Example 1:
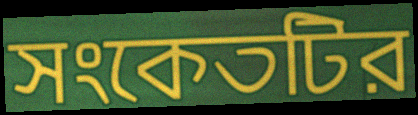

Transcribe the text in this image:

সংকেতটির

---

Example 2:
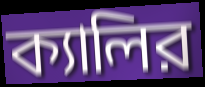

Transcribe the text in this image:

ক্যালির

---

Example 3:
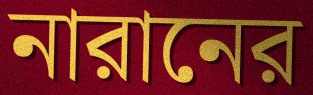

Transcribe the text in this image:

নারানের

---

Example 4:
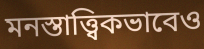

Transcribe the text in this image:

মনস্তাত্ত্বিকভাবেও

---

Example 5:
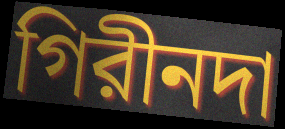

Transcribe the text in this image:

গিরীনদা